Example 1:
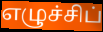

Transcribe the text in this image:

எழுச்சிப்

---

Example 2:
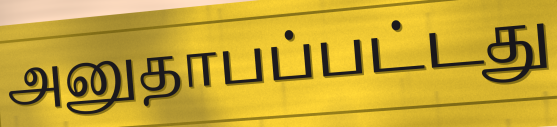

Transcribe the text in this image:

அனுதாபப்பட்டது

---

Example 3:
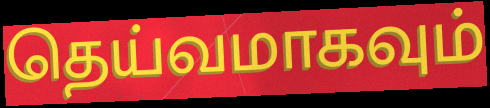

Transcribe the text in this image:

தெய்வமாகவும்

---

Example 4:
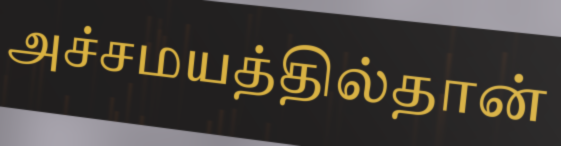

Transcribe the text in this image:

அச்சமயத்தில்தான்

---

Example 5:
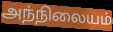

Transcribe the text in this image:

அந்நிலையம்